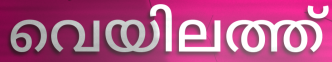
വെയിലത്ത്